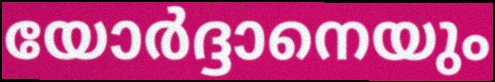
യോർദ്ദാനെയും